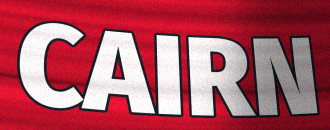
CAIRN